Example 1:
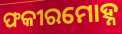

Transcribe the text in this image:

ଫକୀରମୋହ୍ନ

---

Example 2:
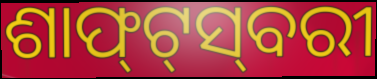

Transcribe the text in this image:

ଶାଫ୍‍ଟ୍‍ସ୍‍ବରୀ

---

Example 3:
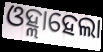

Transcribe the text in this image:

ଓହ୍ଲାହେଲା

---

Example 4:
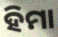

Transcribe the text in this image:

ହିମା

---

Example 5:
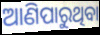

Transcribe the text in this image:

ଆଣିପାରୁଥିବା